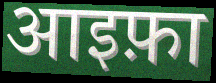
आइफ़ा